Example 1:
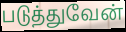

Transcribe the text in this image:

படுத்துவேன்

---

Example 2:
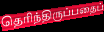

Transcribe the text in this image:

தெரிந்திருப்பதைப்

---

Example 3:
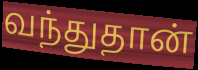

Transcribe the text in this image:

வந்துதான்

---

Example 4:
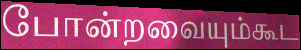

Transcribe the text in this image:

போன்றவையும்கூட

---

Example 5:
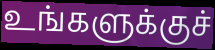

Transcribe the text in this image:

உங்களுக்குச்